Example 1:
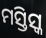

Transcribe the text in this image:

ମସ୍ତିସ୍କ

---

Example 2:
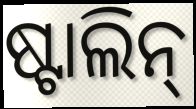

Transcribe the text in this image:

ଷ୍ଟାଲିନ୍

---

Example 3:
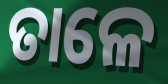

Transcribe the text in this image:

ତାଳେ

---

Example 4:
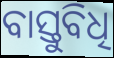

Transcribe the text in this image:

ବାସ୍ତୁବିଧି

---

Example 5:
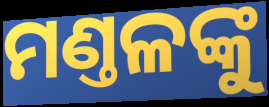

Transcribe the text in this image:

ମଣ୍ତଳଙ୍କୁ